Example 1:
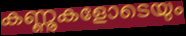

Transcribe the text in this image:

കണ്ണുകളോടെയും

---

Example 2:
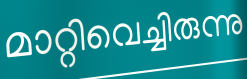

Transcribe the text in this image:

മാറ്റിവെച്ചിരുന്നു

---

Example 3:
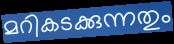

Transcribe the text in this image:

മറികടക്കുന്നതും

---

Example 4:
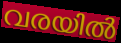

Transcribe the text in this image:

വരയിൽ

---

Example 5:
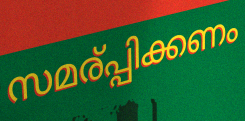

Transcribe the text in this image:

സമര്പ്പിക്കണം